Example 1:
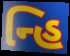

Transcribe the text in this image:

ન્હિ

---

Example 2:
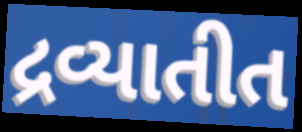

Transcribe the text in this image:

દ્રવ્યાતીત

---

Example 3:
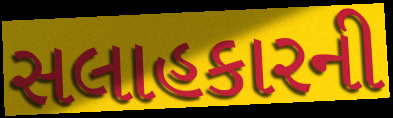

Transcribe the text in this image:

સલાહકારની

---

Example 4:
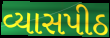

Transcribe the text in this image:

વ્યાસપીઠ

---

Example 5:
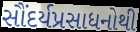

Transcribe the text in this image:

સૌંદર્યપ્રસાધનોથી